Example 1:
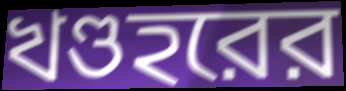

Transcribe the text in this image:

খণ্ডহরের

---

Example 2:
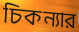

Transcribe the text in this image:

চিকন্যার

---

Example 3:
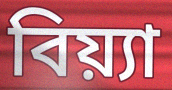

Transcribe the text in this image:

বিয়্যা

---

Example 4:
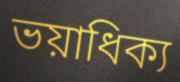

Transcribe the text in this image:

ভয়াধিক্য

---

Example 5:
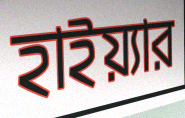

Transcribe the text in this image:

হাইয়্যার